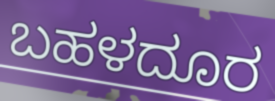
ಬಹಳದೂರ